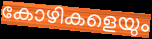
കോഴികളെയും